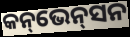
କନ୍‌ଭେନ୍‌ସନ